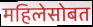
महिलेसोबत